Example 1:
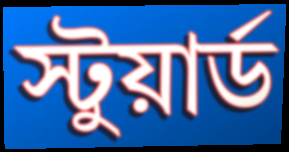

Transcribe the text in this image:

স্টুয়ার্ড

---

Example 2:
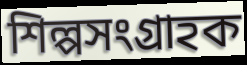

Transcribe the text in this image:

শিল্পসংগ্রাহক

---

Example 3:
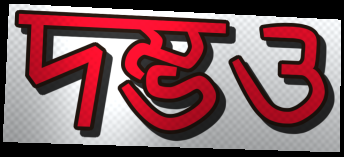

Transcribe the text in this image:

দম্ভও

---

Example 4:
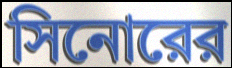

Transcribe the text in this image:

সিনোরের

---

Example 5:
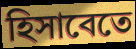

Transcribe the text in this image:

হিসাবেতে